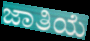
ಜಾತಿಯೆ